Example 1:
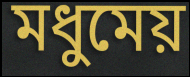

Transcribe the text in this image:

মধুমেয়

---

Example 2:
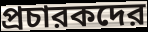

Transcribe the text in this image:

প্রচারকদের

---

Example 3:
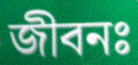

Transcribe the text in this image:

জীবনঃ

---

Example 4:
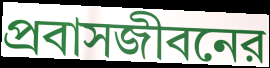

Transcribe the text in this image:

প্রবাসজীবনের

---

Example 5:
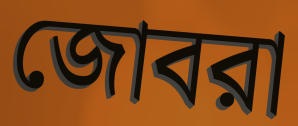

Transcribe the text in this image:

জোবরা